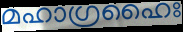
മഹാഗ്രഹൈഃ